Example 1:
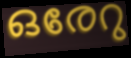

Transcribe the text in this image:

ഒരേറു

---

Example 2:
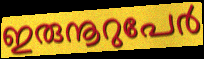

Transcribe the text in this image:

ഇരുനൂറുപേർ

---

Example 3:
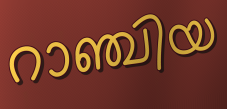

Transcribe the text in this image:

റാഞ്ചിയ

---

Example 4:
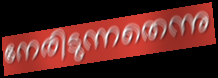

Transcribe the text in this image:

നേരിടുന്നതെന്നു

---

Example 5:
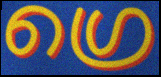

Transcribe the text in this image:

ഗ്രെ